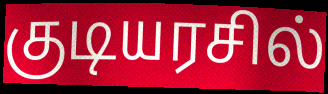
குடியரசில்